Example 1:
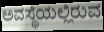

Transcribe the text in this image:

ಅವಸ್ಥೆಯಲ್ಲಿರುವ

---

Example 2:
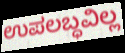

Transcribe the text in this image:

ಉಪಲಬ್ಧವಿಲ್ಲ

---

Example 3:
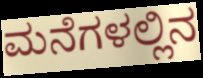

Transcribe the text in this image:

ಮನೆಗಳಲ್ಲಿನ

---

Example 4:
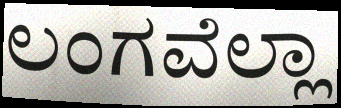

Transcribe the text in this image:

ಲಂಗವೆಲ್ಲಾ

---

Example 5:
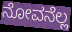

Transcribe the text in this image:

ನೋವನೆಲ್ಲ